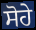
ਸੋਹੇ